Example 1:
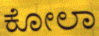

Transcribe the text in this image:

ಕೋಲಾ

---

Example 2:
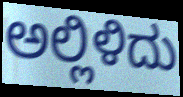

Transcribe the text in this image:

ಅಲ್ಲಿಳಿದು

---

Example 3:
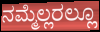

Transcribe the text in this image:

ನಮ್ಮೆಲ್ಲರಲ್ಲೂ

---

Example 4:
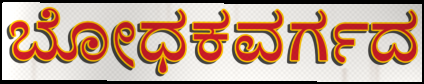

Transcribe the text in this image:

ಬೋಧಕವರ್ಗದ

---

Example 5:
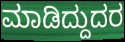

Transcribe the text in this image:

ಮಾಡಿದ್ದುದರ